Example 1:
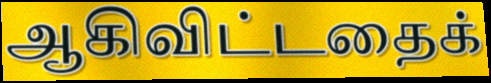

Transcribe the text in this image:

ஆகிவிட்டதைக்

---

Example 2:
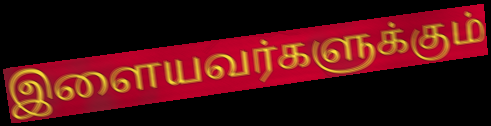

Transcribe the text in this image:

இளையவர்களுக்கும்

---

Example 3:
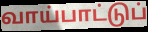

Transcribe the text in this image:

வாய்பாட்டுப்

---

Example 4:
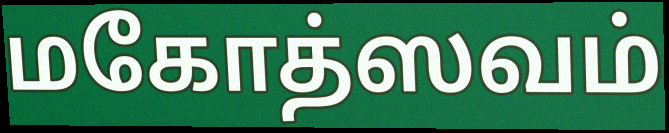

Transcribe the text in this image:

மகோத்ஸவம்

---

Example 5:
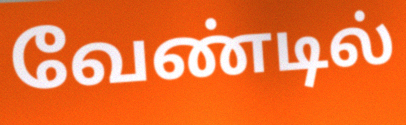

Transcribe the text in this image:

வேண்டில்